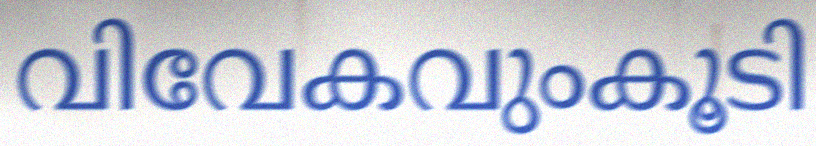
വിവേകവുംകൂടി